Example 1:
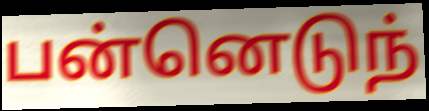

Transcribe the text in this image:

பன்னெடுந்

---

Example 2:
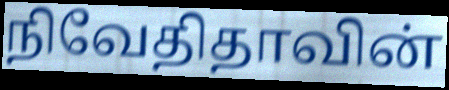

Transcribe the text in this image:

நிவேதிதாவின்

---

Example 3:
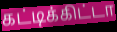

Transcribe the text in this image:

கட்டிக்கிட்டா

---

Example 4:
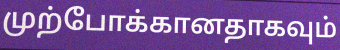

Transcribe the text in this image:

முற்போக்கானதாகவும்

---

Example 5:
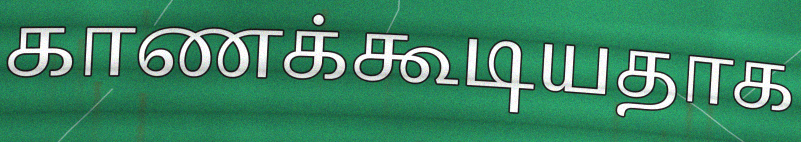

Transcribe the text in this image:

காணக்கூடியதாக